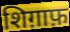
शिग़ाफ़